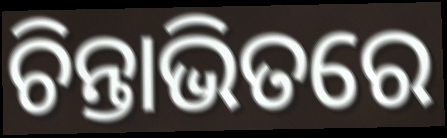
ଚିନ୍ତାଭିତରେ